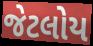
જેટલોય